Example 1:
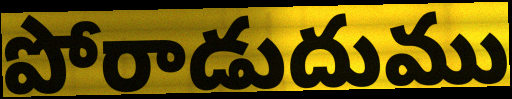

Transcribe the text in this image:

పోరాడుదుము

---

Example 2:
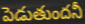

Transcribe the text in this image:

పెడుతుందనీ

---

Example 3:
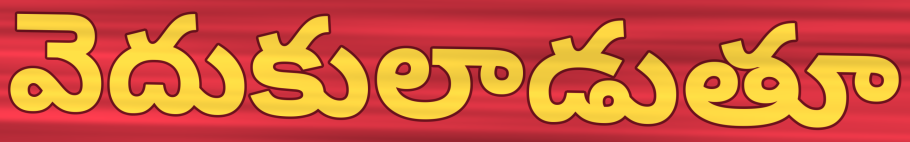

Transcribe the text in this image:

వెదుకులాడుతూ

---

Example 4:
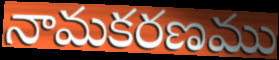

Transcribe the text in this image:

నామకరణము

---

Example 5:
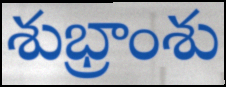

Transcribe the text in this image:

శుభ్రాంశు